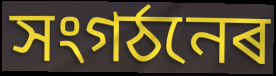
সংগঠনেৰ